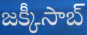
జక్కీసాబ్